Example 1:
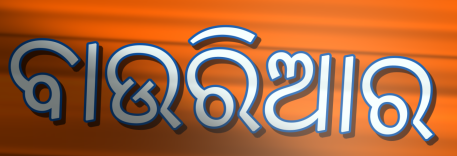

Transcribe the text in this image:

ବାଉରିଆର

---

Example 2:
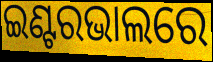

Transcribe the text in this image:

ଇଣ୍ଟରଭାଲରେ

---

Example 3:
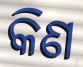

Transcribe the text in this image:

କିଣ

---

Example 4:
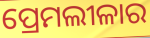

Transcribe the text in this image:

ପ୍ରେମଲୀଳାର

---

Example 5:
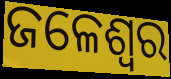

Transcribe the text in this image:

ଜଳେଶ୍ବର